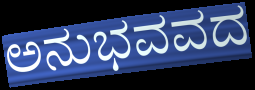
ಅನುಭವವದ